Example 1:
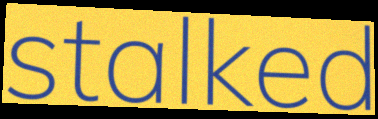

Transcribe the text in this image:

stalked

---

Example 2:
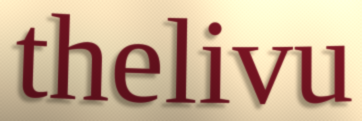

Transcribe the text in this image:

thelivu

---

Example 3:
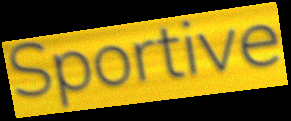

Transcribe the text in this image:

Sportive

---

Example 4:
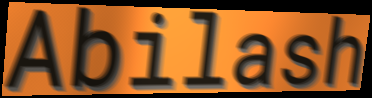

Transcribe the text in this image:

Abilash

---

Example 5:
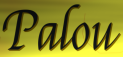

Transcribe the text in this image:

Palou